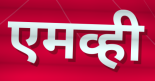
एमव्ही